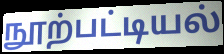
நூற்பட்டியல்